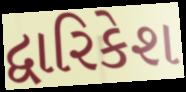
દ્વારિકેશ